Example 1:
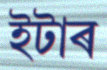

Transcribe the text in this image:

ইটাৰ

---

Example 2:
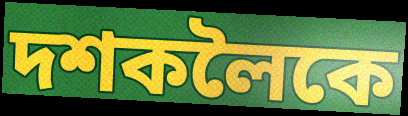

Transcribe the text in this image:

দশকলৈকে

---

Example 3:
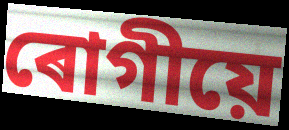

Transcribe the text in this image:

ৰোগীয়ে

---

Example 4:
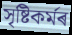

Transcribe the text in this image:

সৃষ্টিকৰ্মৰ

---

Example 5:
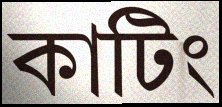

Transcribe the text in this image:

কাটিং